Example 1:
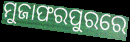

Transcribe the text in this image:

ମୁଜାଫରପୁରରେ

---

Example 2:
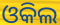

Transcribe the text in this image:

ଓକିଲ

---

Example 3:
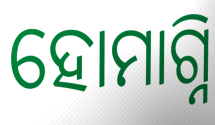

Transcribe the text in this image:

ହୋମାଗ୍ନି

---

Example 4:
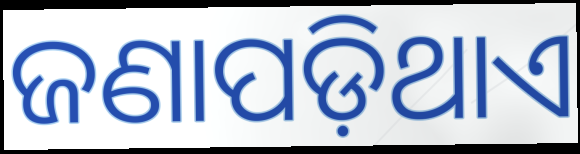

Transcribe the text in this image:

ଜଣାପଡ଼ିଥାଏ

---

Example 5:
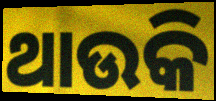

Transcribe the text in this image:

ଥାଉକି